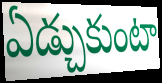
ఏడ్చుకుంటా